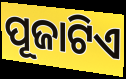
ପୂଜାଟିଏ